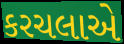
કરચલાએ